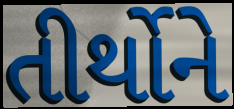
તીર્થોને